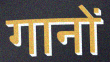
गानों